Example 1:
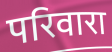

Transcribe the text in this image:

परिवारा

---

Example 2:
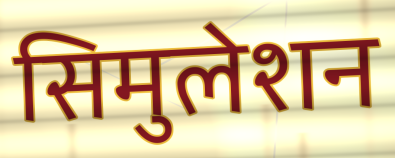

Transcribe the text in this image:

सिमुलेशन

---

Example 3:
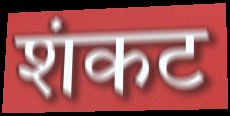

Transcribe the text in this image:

शंकट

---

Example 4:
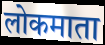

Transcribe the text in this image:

लोकमाता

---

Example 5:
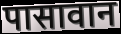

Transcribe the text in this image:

पासावान